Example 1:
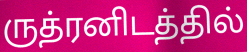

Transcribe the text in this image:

ருத்ரனிடத்தில்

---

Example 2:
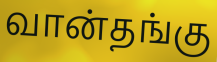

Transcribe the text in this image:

வான்தங்கு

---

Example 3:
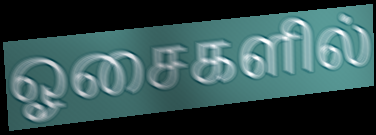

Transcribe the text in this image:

ஓசைகளில்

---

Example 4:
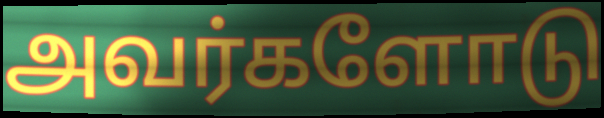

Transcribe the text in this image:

அவர்களோடு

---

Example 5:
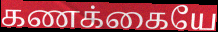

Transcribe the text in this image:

கணக்கையே